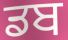
ਡਬ